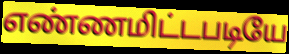
எண்ணமிட்டபடியே